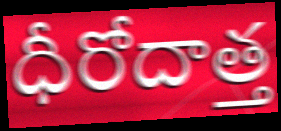
ధీరోదాత్త